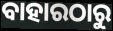
ବାହାରଠାରୁ